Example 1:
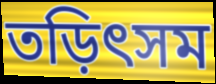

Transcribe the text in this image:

তড়িৎসম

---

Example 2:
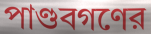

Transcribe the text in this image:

পাণ্ডবগণের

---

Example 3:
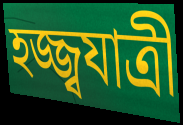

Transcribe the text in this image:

হজ্জ্বযাত্রী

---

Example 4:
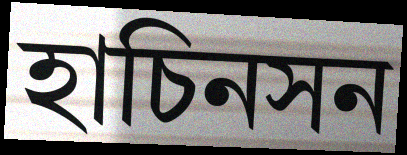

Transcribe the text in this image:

হাচিনসন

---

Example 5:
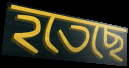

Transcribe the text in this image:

হতেছে